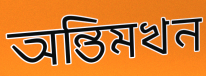
অন্তিমখন